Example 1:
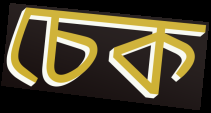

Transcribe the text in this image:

চেক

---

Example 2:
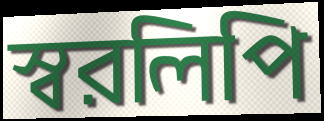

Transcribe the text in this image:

স্বরলিপি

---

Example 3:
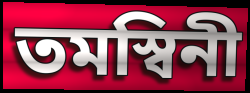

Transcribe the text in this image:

তমস্বিনী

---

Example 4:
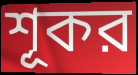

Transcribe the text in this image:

শূকর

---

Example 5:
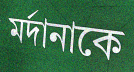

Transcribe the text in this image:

মর্দানাকে